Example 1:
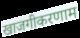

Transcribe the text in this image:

खाजगीकरणाम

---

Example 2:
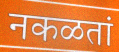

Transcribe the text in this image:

नकळतां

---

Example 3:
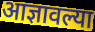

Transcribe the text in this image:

आज्ञावल्या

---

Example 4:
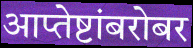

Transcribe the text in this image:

आप्तेष्टांबरोबर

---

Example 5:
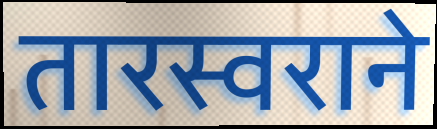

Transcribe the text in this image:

तारस्वराने